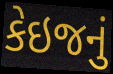
કેઇજનું